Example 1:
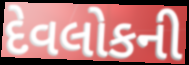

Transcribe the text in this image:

દેવલોકની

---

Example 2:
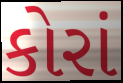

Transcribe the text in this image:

કોરાં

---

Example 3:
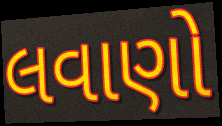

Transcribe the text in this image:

લવાણો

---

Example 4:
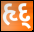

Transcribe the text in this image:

હૃદ્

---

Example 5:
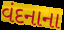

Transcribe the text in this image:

વંદનાના